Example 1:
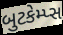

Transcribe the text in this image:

બુટકેમ્પ્સ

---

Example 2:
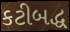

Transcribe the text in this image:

કટીબદ્ધ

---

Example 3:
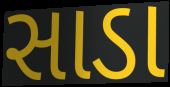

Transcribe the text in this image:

સાડા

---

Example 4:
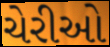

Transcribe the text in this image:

ચેરીઓ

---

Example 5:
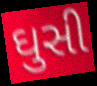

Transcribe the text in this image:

ઘુસી